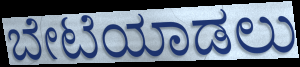
ಬೇಟೆಯಾಡಲು